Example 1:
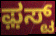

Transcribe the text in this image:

ಫ಼ಸ್ಟ್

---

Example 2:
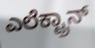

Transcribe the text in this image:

ಎಲೆಕ್ಟ್ರಾನ್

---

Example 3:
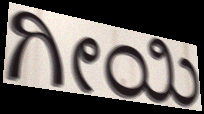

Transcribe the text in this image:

ಗೀಯಿ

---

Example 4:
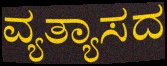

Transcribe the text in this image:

ವ್ಯತ್ಯಾಸದ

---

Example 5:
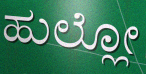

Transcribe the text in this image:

ಹುಲ್ಲೋ